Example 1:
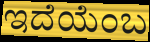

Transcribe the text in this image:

ಇದೆಯೆಂಬ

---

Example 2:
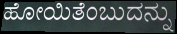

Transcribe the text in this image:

ಹೋಯಿತೆಂಬುದನ್ನು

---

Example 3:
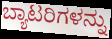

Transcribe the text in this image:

ಬ್ಯಾಟರಿಗಳನ್ನು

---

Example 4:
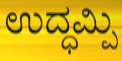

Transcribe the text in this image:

ಉದ್ಧಮ್ಪಿ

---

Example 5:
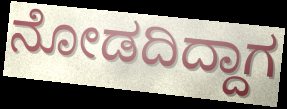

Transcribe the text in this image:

ನೋಡದಿದ್ದಾಗ